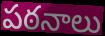
పఠనాలు